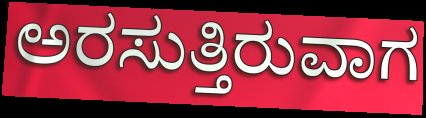
ಅರಸುತ್ತಿರುವಾಗ